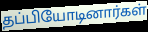
தப்பியோடினார்கள்